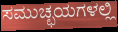
ಸಮುಚ್ಛಯಗಳಲ್ಲಿ